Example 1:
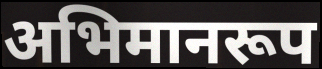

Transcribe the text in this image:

अभिमानरूप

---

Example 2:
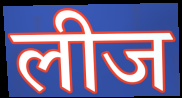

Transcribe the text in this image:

लीज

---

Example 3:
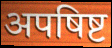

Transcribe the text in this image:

अपषिष्ट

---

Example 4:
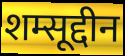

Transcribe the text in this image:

शम्सूद्दीन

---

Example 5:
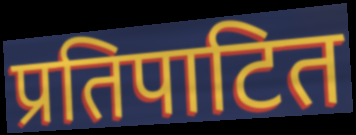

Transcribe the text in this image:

प्रतिपाटित